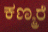
ಕಣ್ಮರೆ